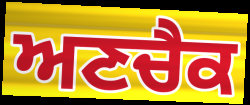
ਅਣਚੈਕ